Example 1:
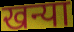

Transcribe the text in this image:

खन्या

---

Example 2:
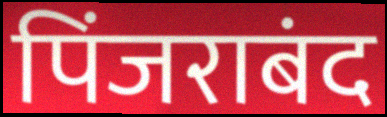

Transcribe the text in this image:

पिंजराबंद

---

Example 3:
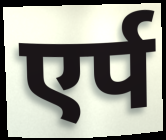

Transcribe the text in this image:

एर्प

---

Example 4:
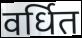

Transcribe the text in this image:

वर्धित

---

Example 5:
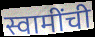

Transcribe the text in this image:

स्वामींची